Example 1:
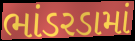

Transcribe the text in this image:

ભાંડરડામાં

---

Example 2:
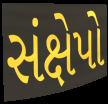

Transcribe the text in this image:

સંક્ષેપો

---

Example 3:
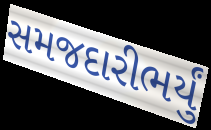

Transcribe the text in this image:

સમજદારીભર્યું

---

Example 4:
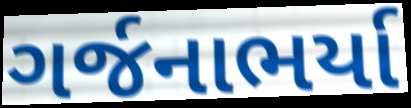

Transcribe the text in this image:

ગર્જનાભર્યા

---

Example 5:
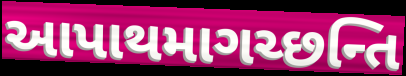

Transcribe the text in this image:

આપાથમાગચ્છન્તિ